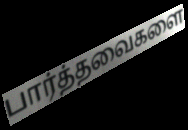
பார்த்தவைகளை